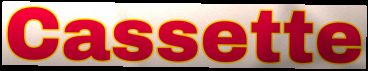
Cassette